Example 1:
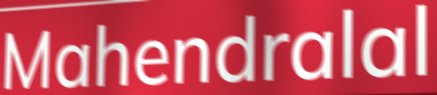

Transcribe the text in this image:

Mahendralal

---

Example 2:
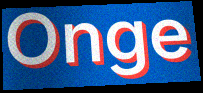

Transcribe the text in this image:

Onge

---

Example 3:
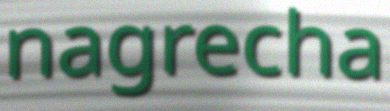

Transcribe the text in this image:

nagrecha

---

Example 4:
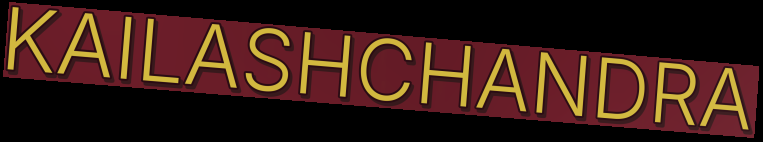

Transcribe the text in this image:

KAILASHCHANDRA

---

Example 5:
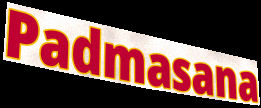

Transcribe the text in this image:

Padmasana